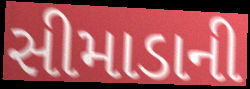
સીમાડાની